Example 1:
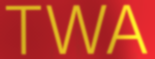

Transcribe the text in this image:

TWA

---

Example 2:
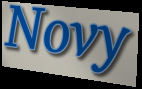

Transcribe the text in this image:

Novy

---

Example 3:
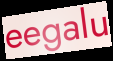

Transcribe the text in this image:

eegalu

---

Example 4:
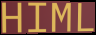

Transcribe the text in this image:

HIML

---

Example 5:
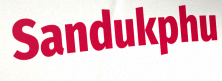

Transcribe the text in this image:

Sandukphu